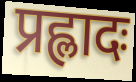
प्रह्लादः